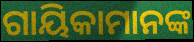
ଗାୟିକାମାନଙ୍କ